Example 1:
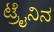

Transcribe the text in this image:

ಟ್ರೈನಿನ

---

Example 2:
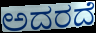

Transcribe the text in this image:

ಅದರದೆ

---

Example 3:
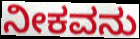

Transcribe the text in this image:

ನೀಕವನು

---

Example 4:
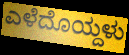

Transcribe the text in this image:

ಎಳೆದೊಯ್ದಳು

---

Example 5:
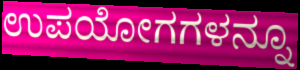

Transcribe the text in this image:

ಉಪಯೋಗಗಳನ್ನೂ